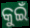
କୁଇଁ